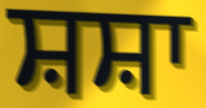
ਸ਼ਸ਼ਾ